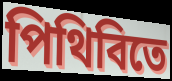
পিথিবিতে